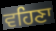
ਵਹਿਣਾ